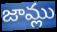
జామ్లు